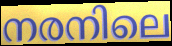
നരനിലെ